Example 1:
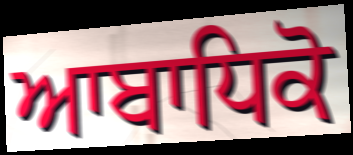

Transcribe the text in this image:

ਆਬਾਧਿਕੋ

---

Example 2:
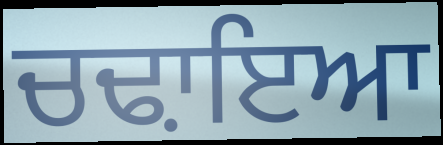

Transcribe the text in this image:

ਚਢ਼ਾਇਆ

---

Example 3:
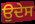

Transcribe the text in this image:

ਉਦੇਸ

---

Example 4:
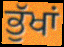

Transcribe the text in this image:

ਭੁੱਖਾਂ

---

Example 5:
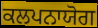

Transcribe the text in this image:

ਕਲਪਨਾਯੋਗ